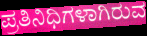
ಪ್ರತಿನಿಧಿಗಳಾಗಿರುವ